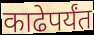
काढेपर्यंत